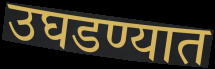
उघडण्यात